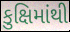
કુક્ષિમાંથી